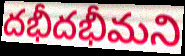
దభీదభీమని